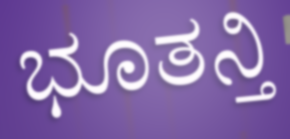
ಭೂತನ್ತಿ